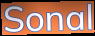
Sonal